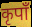
कृपाँ